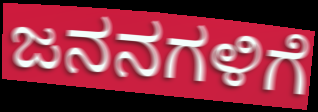
ಜನನಗಳಿಗೆ